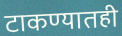
टाकण्यातही